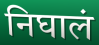
निघालं